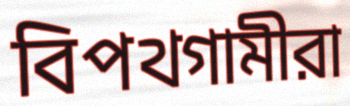
বিপথগামীরা